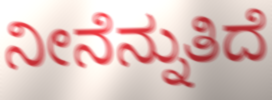
ನೀನೆನ್ನುತಿದೆ